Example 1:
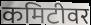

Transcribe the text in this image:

कमिटीवर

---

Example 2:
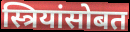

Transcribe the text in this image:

स्त्रियांसोबत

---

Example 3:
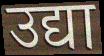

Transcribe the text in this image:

उद्या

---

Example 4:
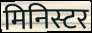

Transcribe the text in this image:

मिनिस्टर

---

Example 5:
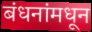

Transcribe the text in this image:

बंधनांमधून